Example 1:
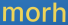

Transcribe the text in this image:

morh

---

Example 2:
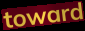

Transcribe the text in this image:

toward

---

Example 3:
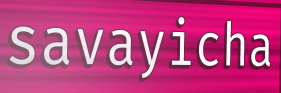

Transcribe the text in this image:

savayicha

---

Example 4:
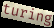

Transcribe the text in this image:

turing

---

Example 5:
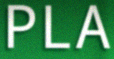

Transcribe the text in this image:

PLA